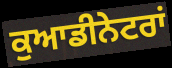
ਕੁਆਡੀਨੇਟਰਾਂ